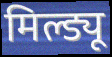
मिल्ड्यू